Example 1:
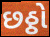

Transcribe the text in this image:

છઠ્ઠો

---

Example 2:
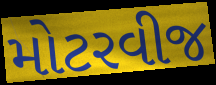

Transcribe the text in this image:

મોટરવીજ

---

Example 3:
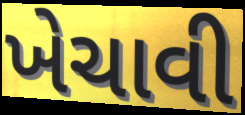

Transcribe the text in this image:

ખેચાવી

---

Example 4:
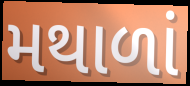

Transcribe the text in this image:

મથાળાં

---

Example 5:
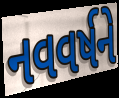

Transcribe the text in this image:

નવવર્ષને